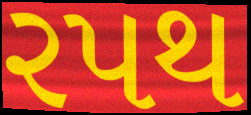
રપથ